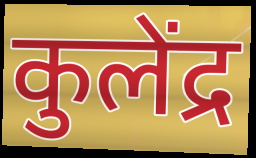
कुलेंद्र